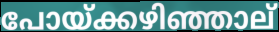
പോയ്ക്കഴിഞ്ഞാല്